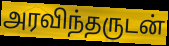
அரவிந்தருடன்